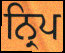
ਨ੍ਰਿਪ